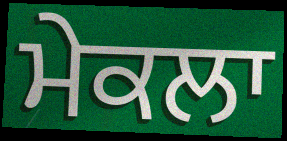
ਮੇਕਲਾ